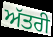
ਅੱਤਰੀ